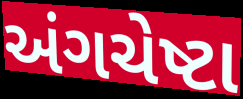
અંગચેષ્ટા